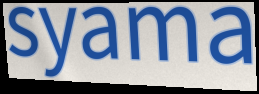
syama